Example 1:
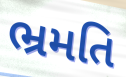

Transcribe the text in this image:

ભ્રમતિ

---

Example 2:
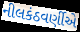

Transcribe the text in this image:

નીલકંઠવર્ણીએ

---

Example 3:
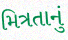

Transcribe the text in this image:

મિત્રતાનું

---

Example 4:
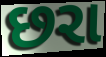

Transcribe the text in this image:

છરા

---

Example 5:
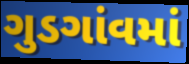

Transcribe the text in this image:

ગુડગાંવમાં